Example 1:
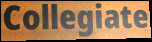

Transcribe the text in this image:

Collegiate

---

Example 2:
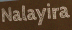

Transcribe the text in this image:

Nalayira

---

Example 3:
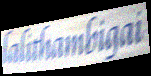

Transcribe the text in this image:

lalithambigai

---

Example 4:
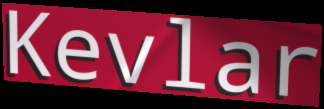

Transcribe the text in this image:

Kevlar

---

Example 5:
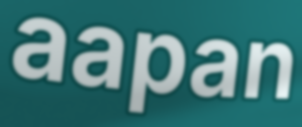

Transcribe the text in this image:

aapan